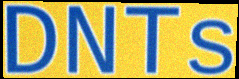
DNTs